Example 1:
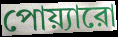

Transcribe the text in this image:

পোয়্যারো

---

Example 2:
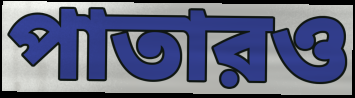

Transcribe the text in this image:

পাতারও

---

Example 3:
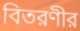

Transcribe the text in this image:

বিতরণীর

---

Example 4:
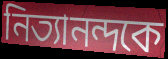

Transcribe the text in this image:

নিত্যানন্দকে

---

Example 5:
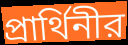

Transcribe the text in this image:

প্রার্থিনীর